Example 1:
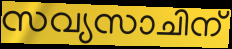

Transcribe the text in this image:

സവ്യസാചിന്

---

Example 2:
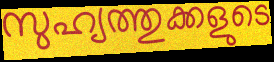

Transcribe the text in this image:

സുഹ്യത്തുക്കളുടെ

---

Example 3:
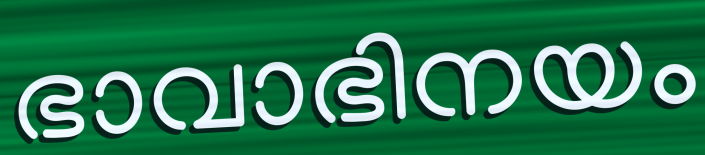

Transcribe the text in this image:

ഭാവാഭിനയം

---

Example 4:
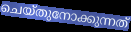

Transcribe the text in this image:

ചെയ്തുനോക്കുന്നത്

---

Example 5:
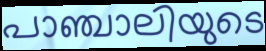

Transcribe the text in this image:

പാഞ്ചാലിയുടെ